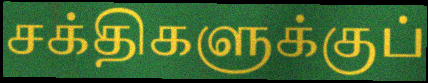
சக்திகளுக்குப்